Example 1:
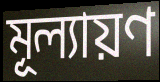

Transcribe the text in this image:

মূল্যায়ণ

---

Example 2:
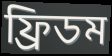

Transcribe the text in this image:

ফ্ৰিডম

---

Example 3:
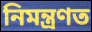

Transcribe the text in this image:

নিমন্ত্ৰণত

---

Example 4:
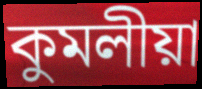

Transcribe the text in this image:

কুমলীয়া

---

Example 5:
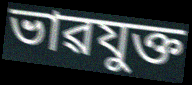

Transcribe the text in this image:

ভাৱযুক্ত